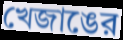
খেজাঙের